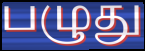
பழுது